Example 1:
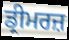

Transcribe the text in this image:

ਡ੍ਰੀਮਰਜ਼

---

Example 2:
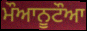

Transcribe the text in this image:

ਮੌਆਨੂਟੌਆ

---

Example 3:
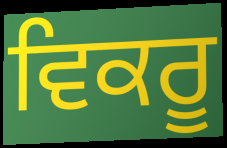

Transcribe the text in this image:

ਵਿਕਰੂ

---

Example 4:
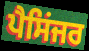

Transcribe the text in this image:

ਪੈਸਿਂਜਰ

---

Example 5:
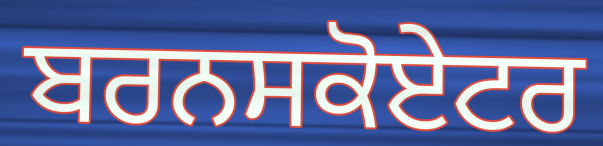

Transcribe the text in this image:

ਬਰਨਸਕੋਏਟਰ